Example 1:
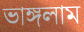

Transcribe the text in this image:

ভাঙ্গলাম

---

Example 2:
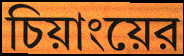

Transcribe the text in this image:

চিয়াংয়ের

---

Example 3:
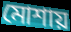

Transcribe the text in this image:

মোশায়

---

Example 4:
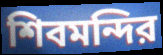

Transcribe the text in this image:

শিবমন্দির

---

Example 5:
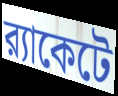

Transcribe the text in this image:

র‍্যাকেটে